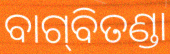
ବାଗ୍‍ବିତଣ୍ଡା